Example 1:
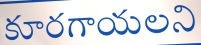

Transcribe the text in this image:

కూరగాయలని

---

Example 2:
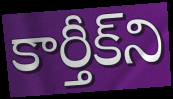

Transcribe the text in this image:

కార్తీక్‌ని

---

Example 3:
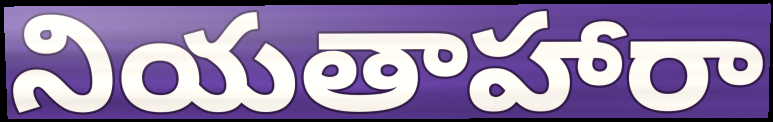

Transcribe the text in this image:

నియతాహారా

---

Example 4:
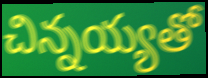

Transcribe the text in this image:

చిన్నయ్యతో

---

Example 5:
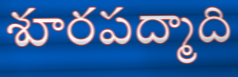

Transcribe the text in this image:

శూరపద్మాది